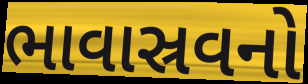
ભાવાસ્રવનો